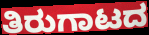
ತಿರುಗಾಟದ